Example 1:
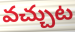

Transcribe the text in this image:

వచ్చుట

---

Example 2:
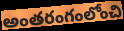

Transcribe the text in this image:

అంతరంగంలోంచి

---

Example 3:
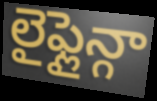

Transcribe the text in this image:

లైఫ్లైన్గా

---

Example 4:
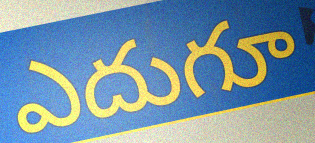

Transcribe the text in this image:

ఎదుగూ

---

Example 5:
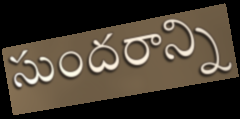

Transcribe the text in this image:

సుందరాన్ని